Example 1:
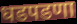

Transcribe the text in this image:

धडपडणा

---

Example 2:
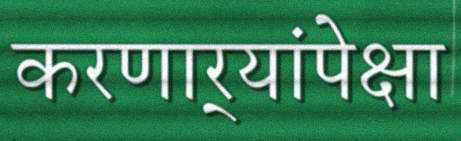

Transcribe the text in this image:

करणार्यांपेक्षा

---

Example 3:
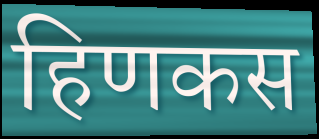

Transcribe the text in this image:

हिणकस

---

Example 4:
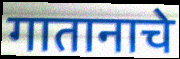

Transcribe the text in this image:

गातानाचे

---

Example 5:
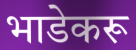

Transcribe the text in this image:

भाडेकरू